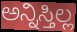
ಅನ್ನಿಸ್ತಿಲ್ಲ